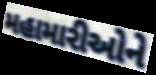
મહામારીઓને